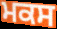
ਮਕਸ